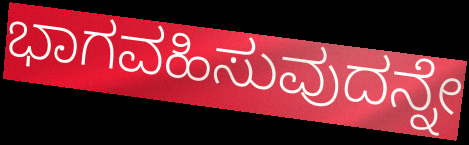
ಭಾಗವಹಿಸುವುದನ್ನೇ